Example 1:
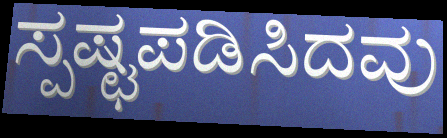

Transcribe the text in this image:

ಸ್ಪಷ್ಟಪಡಿಸಿದವು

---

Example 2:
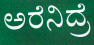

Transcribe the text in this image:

ಅರೆನಿದ್ರೆ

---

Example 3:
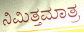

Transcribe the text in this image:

ನಿಮಿತ್ತಮಾತ್ರ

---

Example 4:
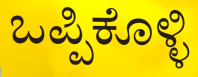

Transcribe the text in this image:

ಒಪ್ಪಿಕೊಳ್ಳಿ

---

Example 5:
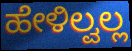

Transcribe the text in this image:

ಹೇಳಿಲ್ವಲ್ಲ